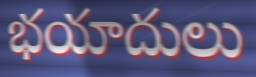
భయాదులు